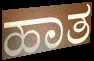
ಹಾತ